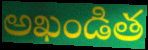
అఖండిత